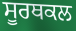
ਸੂਰਥਕਲ